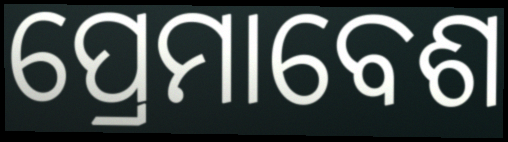
ପ୍ରେମାବେଶ